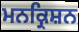
ਮਨਕ੍ਰਿਸ਼ਨ